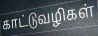
காட்டுவழிகள்